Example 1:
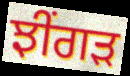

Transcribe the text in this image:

ਝੀਂਗੜ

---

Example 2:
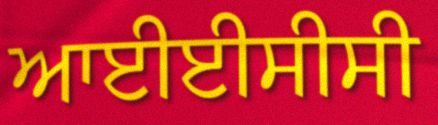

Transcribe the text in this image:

ਆਈਈਸੀਸੀ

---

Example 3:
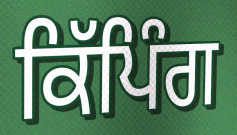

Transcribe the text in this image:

ਕਿੱਪਿੰਗ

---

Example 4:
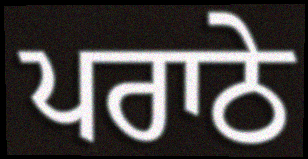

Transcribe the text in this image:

ਪਰਾਠੇ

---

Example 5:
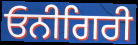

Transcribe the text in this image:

ਓਨੀਗਿਰੀ